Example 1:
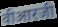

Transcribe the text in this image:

वीआरजी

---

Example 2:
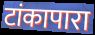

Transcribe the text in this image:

टांकापारा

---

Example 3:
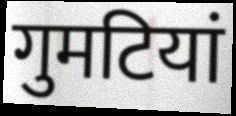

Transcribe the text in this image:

गुमटियां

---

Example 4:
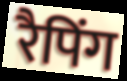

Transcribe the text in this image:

रैपिंग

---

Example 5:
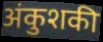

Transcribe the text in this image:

अंकुशकी